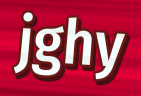
jghy